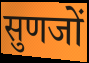
सुणजों